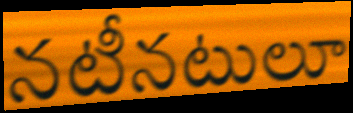
నటీనటులూ